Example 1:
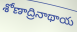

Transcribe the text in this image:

శోణాద్రినాథాయ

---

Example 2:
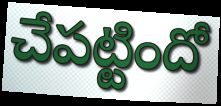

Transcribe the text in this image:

చేపట్టిందో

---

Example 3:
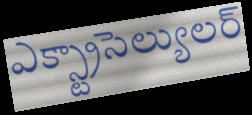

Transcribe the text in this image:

ఎక్స్ట్రాసెల్యులర్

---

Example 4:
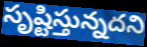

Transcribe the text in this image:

సృష్టిస్తున్నదని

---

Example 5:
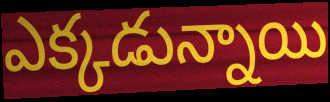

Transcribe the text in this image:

ఎక్కడున్నాయి